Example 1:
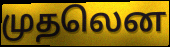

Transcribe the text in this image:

முதலென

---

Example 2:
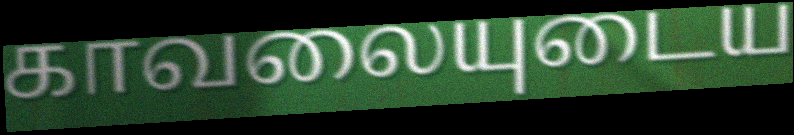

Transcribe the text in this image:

காவலையுடைய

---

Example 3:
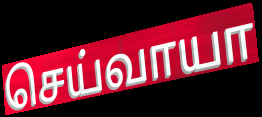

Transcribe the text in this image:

செய்வாயா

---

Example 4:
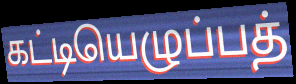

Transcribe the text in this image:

கட்டியெழுப்பத்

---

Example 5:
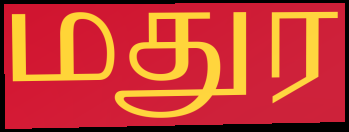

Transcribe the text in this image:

மதுர